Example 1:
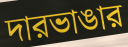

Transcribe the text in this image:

দারভাঙার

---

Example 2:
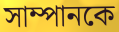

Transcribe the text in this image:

সাম্পানকে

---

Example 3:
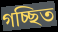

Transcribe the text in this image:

গচ্ছিত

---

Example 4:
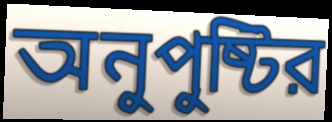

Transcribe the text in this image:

অনুপুষ্টির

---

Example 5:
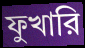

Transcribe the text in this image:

ফুখারি